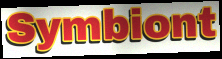
Symbiont